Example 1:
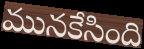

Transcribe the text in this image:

మునకేసింది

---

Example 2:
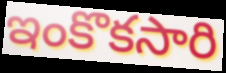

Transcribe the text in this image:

ఇంకొకసారి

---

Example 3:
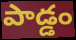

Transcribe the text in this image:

పాడ్డం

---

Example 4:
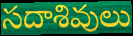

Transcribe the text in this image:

సదాశివులు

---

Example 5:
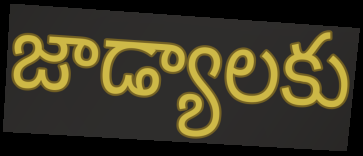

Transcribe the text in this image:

జాడ్యాలకు